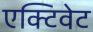
एक्टिवेट